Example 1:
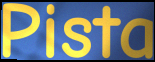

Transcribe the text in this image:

Pista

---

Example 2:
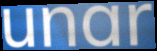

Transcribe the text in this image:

unar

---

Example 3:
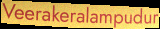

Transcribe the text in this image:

Veerakeralampudur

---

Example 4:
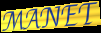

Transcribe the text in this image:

MANET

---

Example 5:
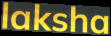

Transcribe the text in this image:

laksha